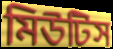
মিউটিস